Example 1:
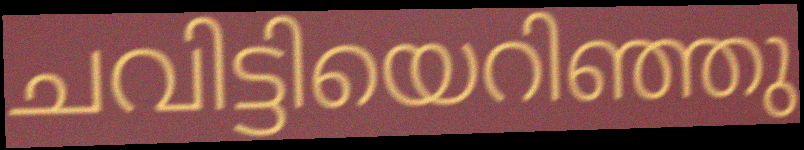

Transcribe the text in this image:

ചവിട്ടിയെറിഞ്ഞു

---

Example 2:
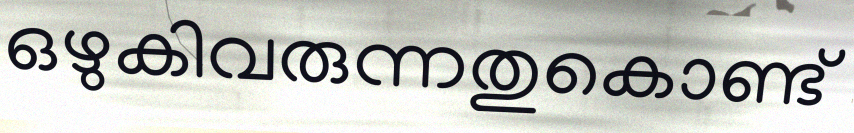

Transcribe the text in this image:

ഒഴുകിവരുന്നതുകൊണ്ട്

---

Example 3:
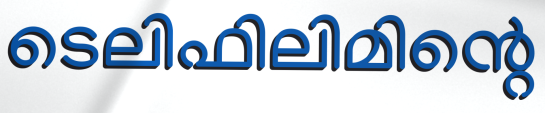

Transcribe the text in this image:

ടെലിഫിലിമിന്റെ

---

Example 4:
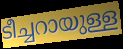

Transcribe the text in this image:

ടീച്ചറായുള്ള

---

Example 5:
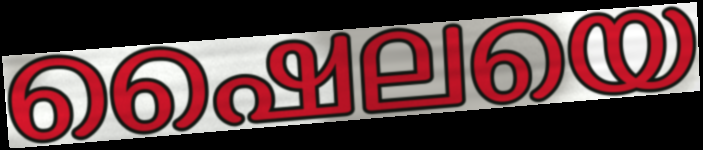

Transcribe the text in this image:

ഷൈലയെ